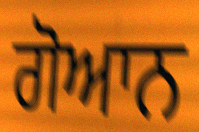
ਗੋਆਨ